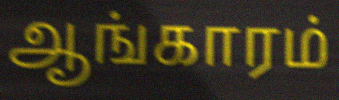
ஆங்காரம்